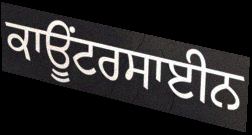
ਕਾਊਂਟਰਸਾਈਨ